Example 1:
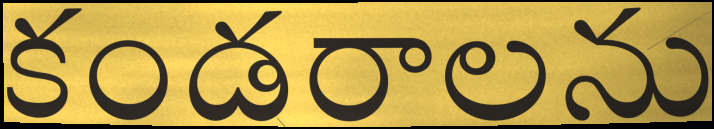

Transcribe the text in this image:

కండరాలను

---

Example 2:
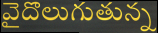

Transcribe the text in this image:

వైదొలుగుతున్న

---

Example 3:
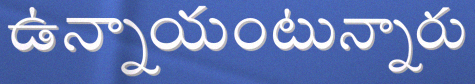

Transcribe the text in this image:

ఉన్నాయంటున్నారు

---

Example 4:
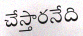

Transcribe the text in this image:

చేస్తారనేది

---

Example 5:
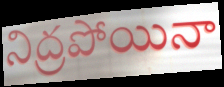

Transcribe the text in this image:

నిద్రపోయినా